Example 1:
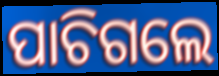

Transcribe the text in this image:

ପାଚିଗଲେ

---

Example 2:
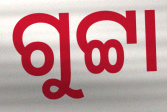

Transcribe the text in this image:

ଗୁଟ୍ଟା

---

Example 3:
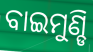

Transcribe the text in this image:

ବାଇମୁଣ୍ଡି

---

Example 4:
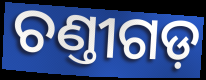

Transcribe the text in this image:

ଚଣ୍ତୀଗଡ଼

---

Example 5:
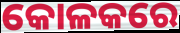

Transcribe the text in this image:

କୋଳକରେ